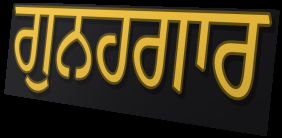
ਗੁਨਹਗਾਰ